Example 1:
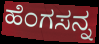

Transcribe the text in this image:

ಹೆಂಗಸನ್ನ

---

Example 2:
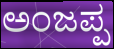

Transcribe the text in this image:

ಅಂಜಪ್ಪ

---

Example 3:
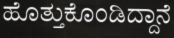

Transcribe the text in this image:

ಹೊತ್ತುಕೊಂಡಿದ್ದಾನೆ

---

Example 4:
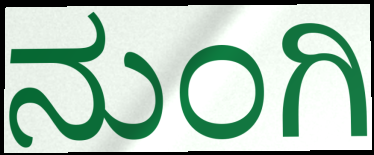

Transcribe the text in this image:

ನುಂಗಿ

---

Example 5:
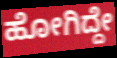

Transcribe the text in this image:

ಹೋಗಿದ್ದೇ